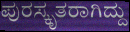
ಪುರಸ್ಕೃತರಾಗಿದ್ದು